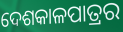
ଦେଶକାଳପାତ୍ରର